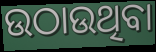
ଉଠାଉଥିବା